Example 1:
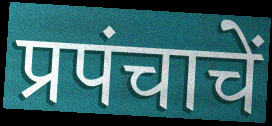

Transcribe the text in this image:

प्रपंचाचें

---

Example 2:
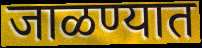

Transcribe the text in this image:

जाळण्यात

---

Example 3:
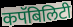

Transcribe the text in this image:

कपॅबिलिटी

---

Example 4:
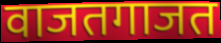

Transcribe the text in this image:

वाजतगाजत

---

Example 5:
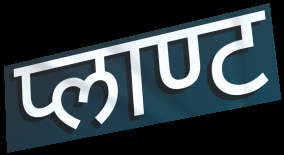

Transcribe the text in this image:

प्लाण्ट